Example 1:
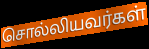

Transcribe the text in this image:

சொல்லியவர்கள்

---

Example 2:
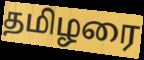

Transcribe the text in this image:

தமிழரை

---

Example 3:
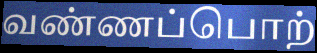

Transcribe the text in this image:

வண்ணப்பொற்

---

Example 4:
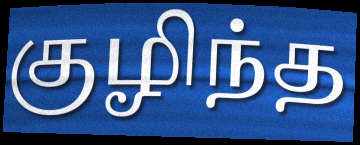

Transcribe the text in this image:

குழிந்த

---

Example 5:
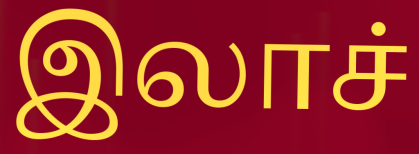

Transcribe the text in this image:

இலாச்